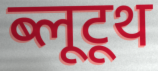
ब्लूटूथ